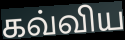
கவ்விய